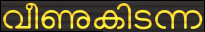
വീണുകിടന്ന